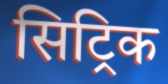
सिट्रिक